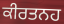
ਕੀਰਤਨਹ